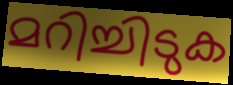
മറിച്ചിടുക